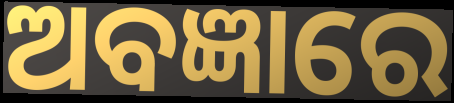
ଅବଜ୍ଞାରେ